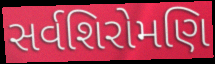
સર્વશિરોમણિ